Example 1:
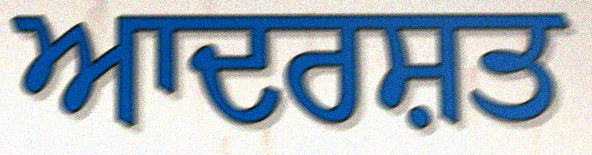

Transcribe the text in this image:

ਆਦਰਸ਼ਤ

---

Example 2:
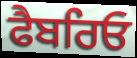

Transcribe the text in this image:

ਫੈਬਰਿਓ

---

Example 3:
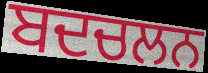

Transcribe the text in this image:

ਬਦਚਲਨ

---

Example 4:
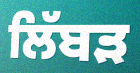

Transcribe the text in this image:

ਲਿੱਬੜ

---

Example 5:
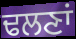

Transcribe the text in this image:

ਢਲਣਾਂ